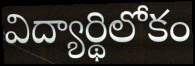
విద్యార్థిలోకం